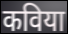
कविया